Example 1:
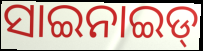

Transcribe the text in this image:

ସାଇନାଇଡ୍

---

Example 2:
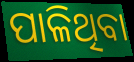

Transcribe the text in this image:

ପାଳିଥିବା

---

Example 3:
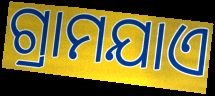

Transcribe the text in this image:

ଗ୍ରାମଯାଏ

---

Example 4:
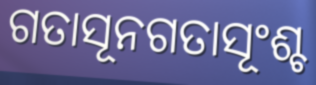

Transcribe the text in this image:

ଗତାସୂନଗତାସୂଂଶ୍ଚ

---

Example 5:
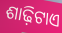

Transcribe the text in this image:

ଶାଢ଼ିଟାଏ